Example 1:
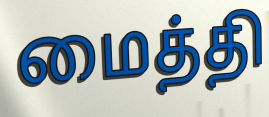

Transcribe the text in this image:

மைத்தி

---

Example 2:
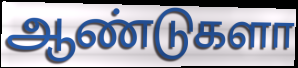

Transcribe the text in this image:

ஆண்டுகளா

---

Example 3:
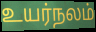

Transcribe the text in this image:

உயர்நலம்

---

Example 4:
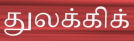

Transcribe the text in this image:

துலக்கிக்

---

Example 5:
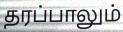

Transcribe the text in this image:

தரப்பாலும்